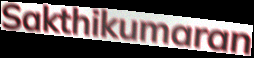
Sakthikumaran